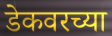
डेकवरच्या